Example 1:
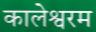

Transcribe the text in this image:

कालेश्वरम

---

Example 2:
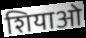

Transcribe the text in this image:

शियाओ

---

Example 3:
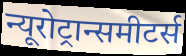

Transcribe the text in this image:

न्यूरोट्रान्समीटर्स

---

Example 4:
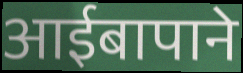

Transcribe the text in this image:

आईबापाने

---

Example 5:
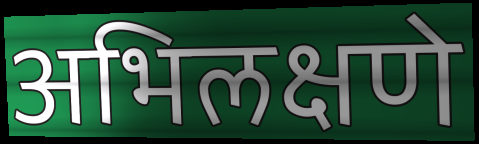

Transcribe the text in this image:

अभिलक्षणे